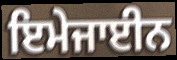
ਇਮੇਜਾਈਨ